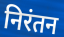
निरंतन